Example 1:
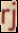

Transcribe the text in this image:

rj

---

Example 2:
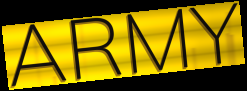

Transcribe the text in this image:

ARMY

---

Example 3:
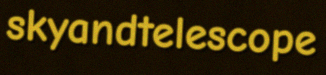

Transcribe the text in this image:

skyandtelescope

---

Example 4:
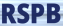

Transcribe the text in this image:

RSPB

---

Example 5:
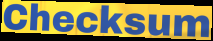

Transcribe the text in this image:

Checksum